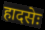
हादसेः